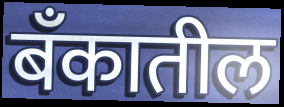
बँकातील